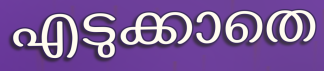
എടുക്കാതെ